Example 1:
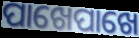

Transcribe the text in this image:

ପାଖେପାଖେ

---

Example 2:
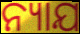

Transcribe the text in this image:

ନ୍ୟାଯ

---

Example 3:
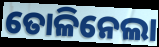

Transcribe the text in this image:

ତୋଳିନେଲା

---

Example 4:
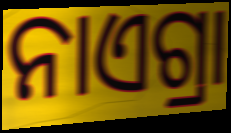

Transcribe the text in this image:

ନାଏଗ୍ରା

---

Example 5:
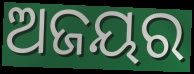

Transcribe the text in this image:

ଅଜୟର